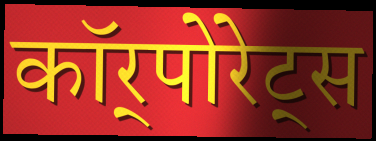
कॉर्पोरेट्‌स